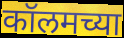
कॉलमच्या